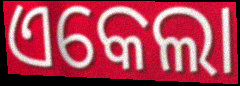
ଏକେଲା